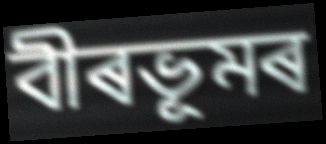
বীৰভূমৰ